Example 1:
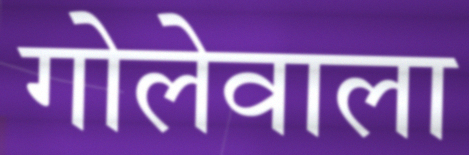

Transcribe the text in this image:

गोलेवाला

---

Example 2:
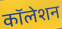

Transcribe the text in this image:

कॉलेशन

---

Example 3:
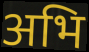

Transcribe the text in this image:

अभि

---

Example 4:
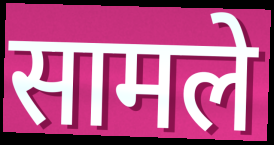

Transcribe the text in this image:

सामले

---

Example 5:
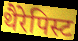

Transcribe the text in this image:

थैरेपिस्ट